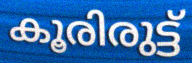
കൂരിരുട്ട്